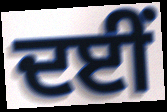
ਦਈਂ